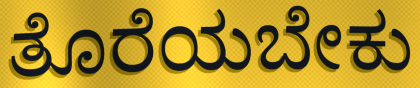
ತೊರೆಯಬೇಕು